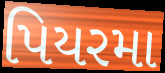
પિયરમા